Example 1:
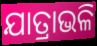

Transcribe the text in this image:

ଯାତ୍ରାଭଳି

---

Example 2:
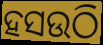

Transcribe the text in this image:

ହସଉଠି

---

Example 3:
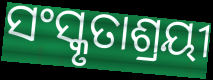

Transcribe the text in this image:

ସଂସ୍କୃତାଶ୍ରୟୀ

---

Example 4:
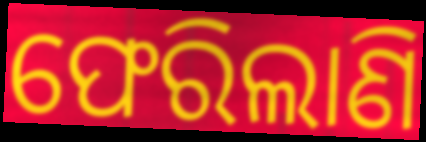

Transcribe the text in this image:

ଫେରିଲାଣି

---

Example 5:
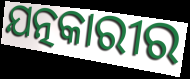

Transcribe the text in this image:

ଯତ୍ନକାରୀର